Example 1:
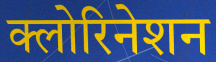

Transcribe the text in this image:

क्लोरिनेशन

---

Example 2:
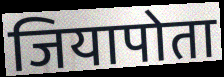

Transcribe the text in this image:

जियापोता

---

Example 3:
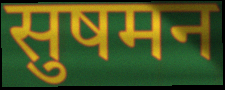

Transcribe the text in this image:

सुषमन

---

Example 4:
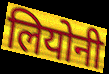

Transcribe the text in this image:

लियोनी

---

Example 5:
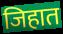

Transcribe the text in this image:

जिहात